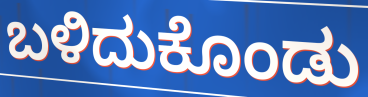
ಬಳಿದುಕೊಂಡು